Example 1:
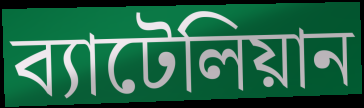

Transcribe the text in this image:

ব্যাটেলিয়ান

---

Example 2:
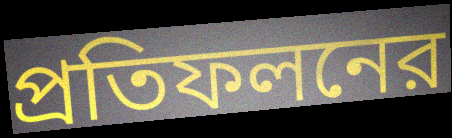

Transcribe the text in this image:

প্রতিফলনের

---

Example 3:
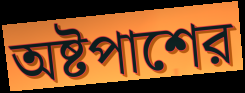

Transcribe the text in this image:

অষ্টপাশের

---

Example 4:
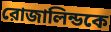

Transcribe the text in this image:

রোজালিন্ডকে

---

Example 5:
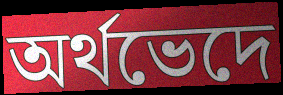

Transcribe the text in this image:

অর্থভেদে